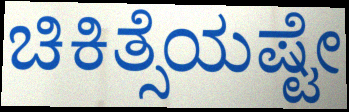
ಚಿಕಿತ್ಸೆಯಷ್ಟೇ